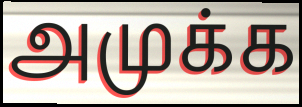
அமுக்க